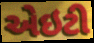
એઇટી